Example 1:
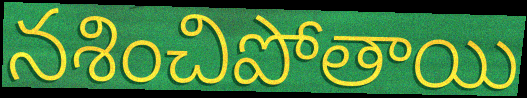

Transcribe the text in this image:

నశించిపోతాయి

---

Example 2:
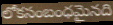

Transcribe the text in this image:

లోకసంబంధమైనది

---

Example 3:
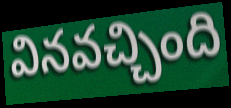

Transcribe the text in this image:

వినవచ్చింది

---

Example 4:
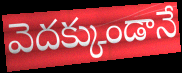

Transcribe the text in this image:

వెదక్కుండానే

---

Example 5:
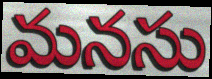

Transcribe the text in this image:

మనసు